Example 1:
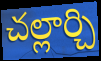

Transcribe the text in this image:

చల్లార్చి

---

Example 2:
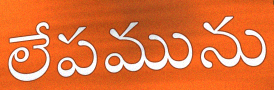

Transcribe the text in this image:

లేపమును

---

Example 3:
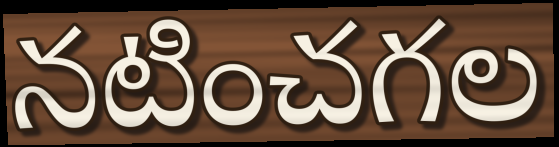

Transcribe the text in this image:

నటించగల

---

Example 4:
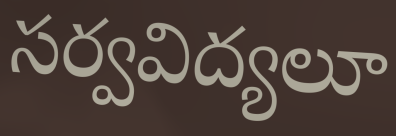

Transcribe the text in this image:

సర్వవిద్యలూ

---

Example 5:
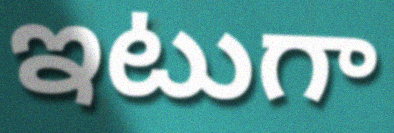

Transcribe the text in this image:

ఇటుగా